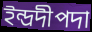
ইন্দ্রদীপদা